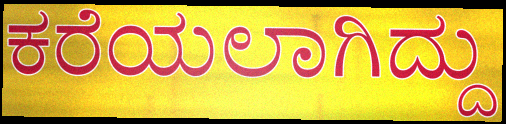
ಕರೆಯಲಾಗಿದ್ದು